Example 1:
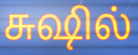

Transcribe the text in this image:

சுஷில்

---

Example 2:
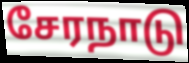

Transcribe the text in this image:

சேரநாடு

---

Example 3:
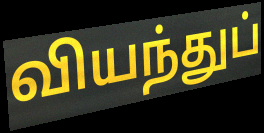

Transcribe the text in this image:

வியந்துப்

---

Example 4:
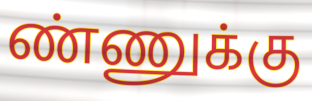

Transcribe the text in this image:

ண்ணுக்கு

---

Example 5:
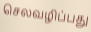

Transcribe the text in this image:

செலவழிப்பது